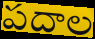
పదాల